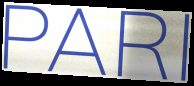
PARI